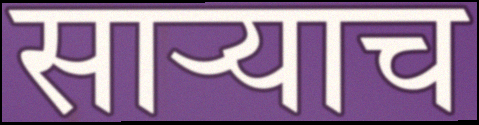
साऱ्याच